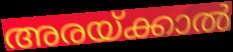
അരയ്ക്കാൽ